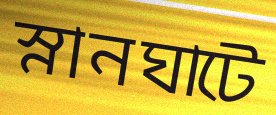
স্নানঘাটে